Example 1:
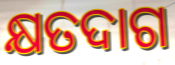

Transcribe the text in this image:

କ୍ଷତଦାଗ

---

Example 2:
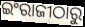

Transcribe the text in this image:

ଇଂରାଜୀଠାରୁ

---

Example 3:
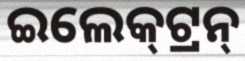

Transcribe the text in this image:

ଇଲେକ୍‍ଟ୍ରନ୍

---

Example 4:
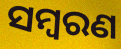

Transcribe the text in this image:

ସମ୍ଵରଣ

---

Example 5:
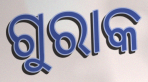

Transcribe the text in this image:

ଗୁରାକ